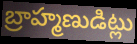
బ్రాహ్మణుడిట్లు